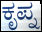
ಕೃಪ್ನ